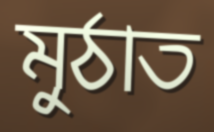
মুঠাত